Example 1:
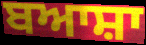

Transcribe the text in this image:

ਬਆਸ਼ਾ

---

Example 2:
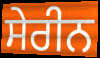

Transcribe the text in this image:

ਸੇਰੀਨ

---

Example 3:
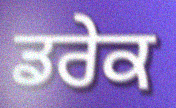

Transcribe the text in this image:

ਡਰੇਕ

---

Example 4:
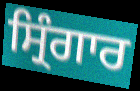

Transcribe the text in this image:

ਸ੍ਰਿੰਗਾਰ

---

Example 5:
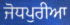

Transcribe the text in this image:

ਜੋਧਪੁਰੀਆ